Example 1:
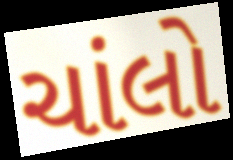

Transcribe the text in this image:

ચાંલો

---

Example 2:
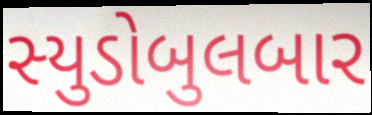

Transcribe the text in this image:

સ્યુડોબુલબાર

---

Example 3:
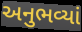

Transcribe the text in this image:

અનુભવ્યાં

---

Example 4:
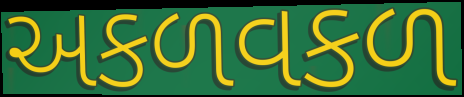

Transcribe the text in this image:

અકળવકળ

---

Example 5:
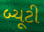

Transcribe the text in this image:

બ્યૂટી